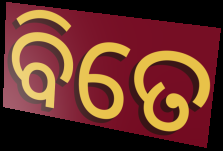
ବିତେ